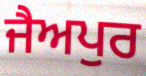
ਜੈਅਪੁਰ